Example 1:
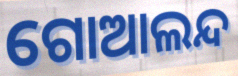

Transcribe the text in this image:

ଗୋଆଲନ୍ଦ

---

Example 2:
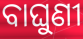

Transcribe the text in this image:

ବାଘୁଣୀ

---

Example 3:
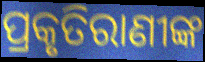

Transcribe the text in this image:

ପ୍ରକୃତିରାଣୀଙ୍କ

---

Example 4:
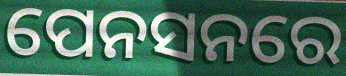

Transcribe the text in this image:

ପେନସନରେ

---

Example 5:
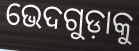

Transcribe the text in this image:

ଭେଦଗୁଡ଼ାକୁ